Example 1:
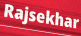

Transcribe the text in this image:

Rajsekhar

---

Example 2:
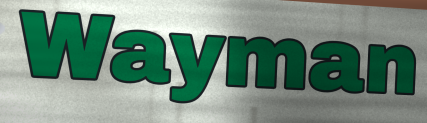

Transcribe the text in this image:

Wayman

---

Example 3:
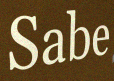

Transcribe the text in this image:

Sabe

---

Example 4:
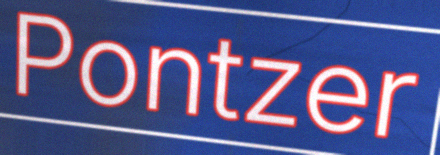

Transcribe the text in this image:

Pontzer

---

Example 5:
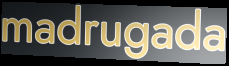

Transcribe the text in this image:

madrugada